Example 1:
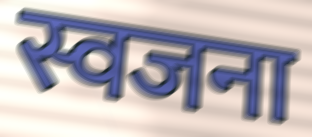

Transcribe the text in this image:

स्वजना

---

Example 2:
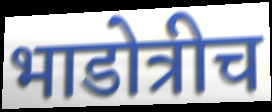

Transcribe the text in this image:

भाडोत्रीच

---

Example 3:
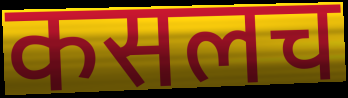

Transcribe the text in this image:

कसलच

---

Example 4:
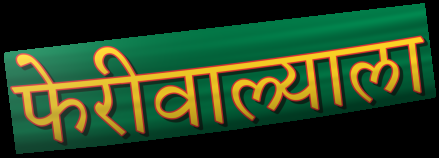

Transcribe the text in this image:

फेरीवाल्याला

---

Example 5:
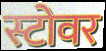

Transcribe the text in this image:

स्टोवर